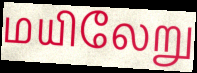
மயிலேறு